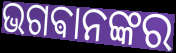
ଭଗଵାନଙ୍କର